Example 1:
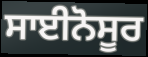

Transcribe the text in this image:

ਸਾਈਨੋਸੂਰ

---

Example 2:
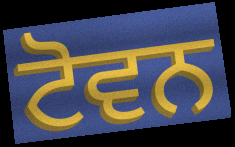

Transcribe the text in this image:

ਟੋਵਨ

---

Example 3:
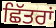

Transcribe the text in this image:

ਛਿੱਤਰਾਂ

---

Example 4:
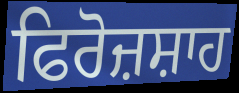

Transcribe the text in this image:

ਫਿਰੋਜ਼ਸ਼ਾਹ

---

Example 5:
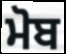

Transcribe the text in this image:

ਮੋਬ